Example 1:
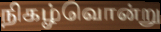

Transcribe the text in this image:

நிகழ்வொன்று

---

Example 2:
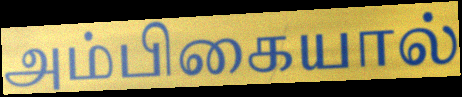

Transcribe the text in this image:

அம்பிகையால்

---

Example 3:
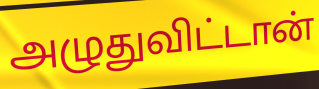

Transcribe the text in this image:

அழுதுவிட்டான்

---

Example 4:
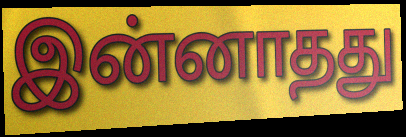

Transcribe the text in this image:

இன்னாதது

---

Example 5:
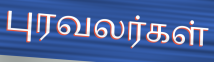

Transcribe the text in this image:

புரவலர்கள்